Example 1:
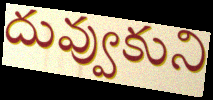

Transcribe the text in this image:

దువ్వుకుని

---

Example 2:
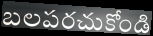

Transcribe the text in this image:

బలపరచుకోండి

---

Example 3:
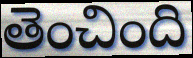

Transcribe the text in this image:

తెంచింది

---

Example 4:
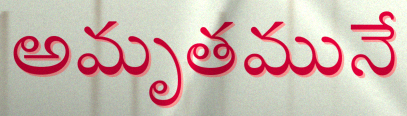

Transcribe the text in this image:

అమృతమునే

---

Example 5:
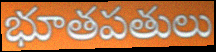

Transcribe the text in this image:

భూతపతులు